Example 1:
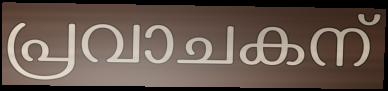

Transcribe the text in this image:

പ്രവാചകന്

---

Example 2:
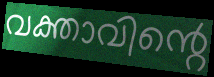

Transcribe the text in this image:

വക്താവിന്റെ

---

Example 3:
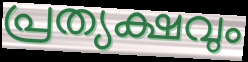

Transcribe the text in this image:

പ്രത്യക്ഷവും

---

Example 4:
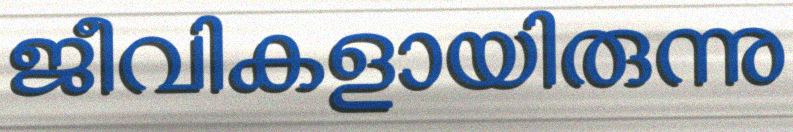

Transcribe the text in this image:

ജീവികളായിരുന്നു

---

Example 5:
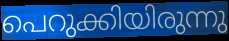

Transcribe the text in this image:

പെറുക്കിയിരുന്നു